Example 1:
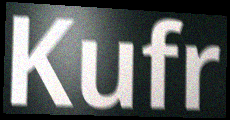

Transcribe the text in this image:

Kufr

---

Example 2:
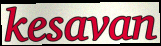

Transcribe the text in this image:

kesavan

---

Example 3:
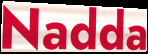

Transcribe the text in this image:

Nadda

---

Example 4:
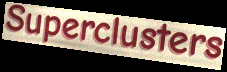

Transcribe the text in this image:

Superclusters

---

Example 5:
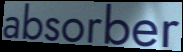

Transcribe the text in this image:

absorber